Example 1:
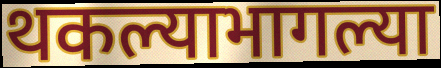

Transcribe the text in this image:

थकल्याभागल्या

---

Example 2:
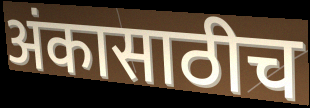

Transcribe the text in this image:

अंकासाठीच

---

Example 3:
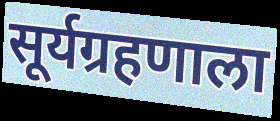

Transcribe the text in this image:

सूर्यग्रहणाला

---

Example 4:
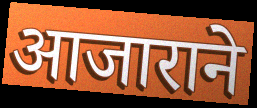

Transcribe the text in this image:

आजाराने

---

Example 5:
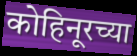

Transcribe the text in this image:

कोहिनूरच्या